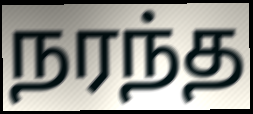
நரந்த